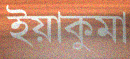
ইয়াকুমা